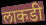
लाकडी